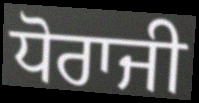
ਧੋਰਾਜੀ